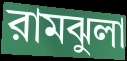
রামঝুলা